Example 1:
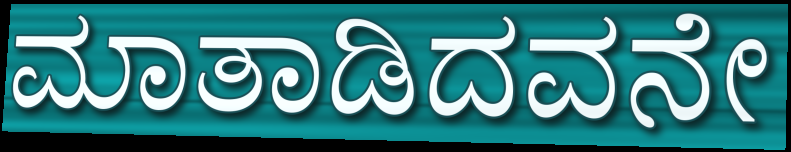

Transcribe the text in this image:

ಮಾತಾಡಿದವನೇ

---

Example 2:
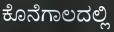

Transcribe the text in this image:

ಕೊನೆಗಾಲದಲ್ಲಿ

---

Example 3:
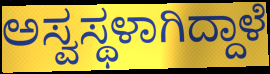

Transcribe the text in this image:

ಅಸ್ವಸ್ಥಳಾಗಿದ್ದಾಳೆ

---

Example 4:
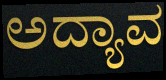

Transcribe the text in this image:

ಅದ್ಯಾವ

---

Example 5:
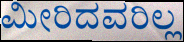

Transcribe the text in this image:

ಮೀರಿದವರಿಲ್ಲ